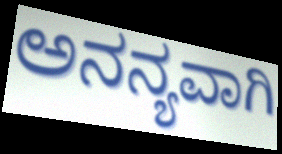
ಅನನ್ಯವಾಗಿ